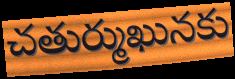
చతుర్ముఖునకు